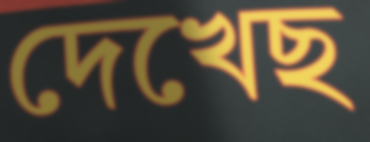
দেখেছ